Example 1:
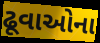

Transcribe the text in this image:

ઢૂવાઓના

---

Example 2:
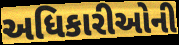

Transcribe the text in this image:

અધિકારીઓની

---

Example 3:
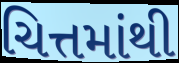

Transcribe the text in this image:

ચિત્તમાંથી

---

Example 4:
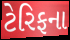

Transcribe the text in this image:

ટેરિફના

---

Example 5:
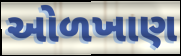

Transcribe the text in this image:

ઓળખાણ